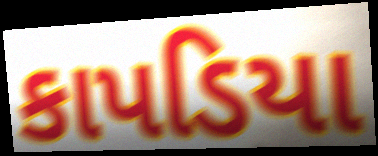
કાપડિયા